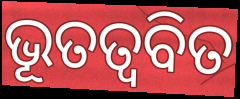
ଭୂତତ୍ଵବିତ